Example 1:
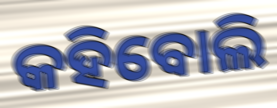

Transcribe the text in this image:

କହିବୋଲି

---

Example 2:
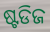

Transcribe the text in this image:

ଷ୍ଟଡିଜ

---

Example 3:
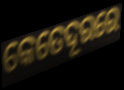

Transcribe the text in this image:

କେତେଦୂରରେ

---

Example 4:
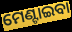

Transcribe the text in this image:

ମେଣ୍ଟାଇବା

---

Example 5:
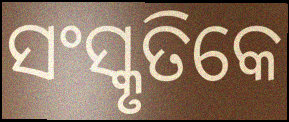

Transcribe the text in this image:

ସଂସ୍କୃତିକେ